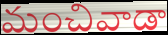
మంచివాడా